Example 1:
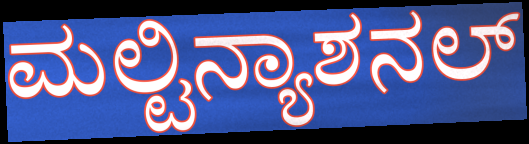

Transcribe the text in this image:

ಮಲ್ಟಿನ್ಯಾಶನಲ್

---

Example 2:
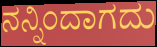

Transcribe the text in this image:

ನನ್ನಿಂದಾಗದು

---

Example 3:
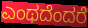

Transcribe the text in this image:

ಎಂಥದೆಂದರೆ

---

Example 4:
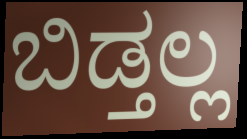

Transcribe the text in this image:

ಬಿಡ್ತಲ್ಲ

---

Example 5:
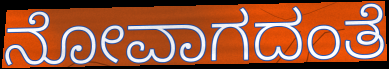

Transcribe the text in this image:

ನೋವಾಗದಂತೆ